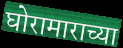
घोरामाराच्या